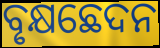
ବୃକ୍ଷଛେଦନ